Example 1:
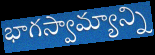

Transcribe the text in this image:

భాగస్వామ్యాన్ని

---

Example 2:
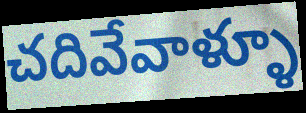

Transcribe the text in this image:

చదివేవాళ్ళూ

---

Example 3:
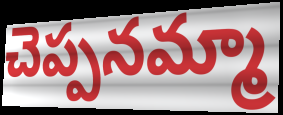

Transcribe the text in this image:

చెప్పనమ్మా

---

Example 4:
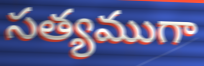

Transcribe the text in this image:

సత్యముగా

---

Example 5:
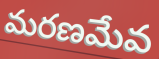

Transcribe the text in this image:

మరణమేవ